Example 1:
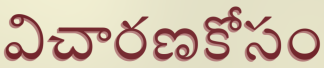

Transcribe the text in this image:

విచారణకోసం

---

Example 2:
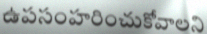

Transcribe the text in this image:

ఉపసంహరించుకోవాలని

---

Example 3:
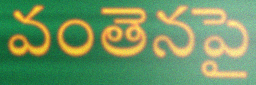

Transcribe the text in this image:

వంతెనపై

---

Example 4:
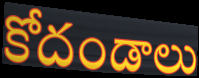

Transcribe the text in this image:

కోదండాలు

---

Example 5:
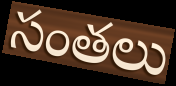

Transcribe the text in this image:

సంతలు